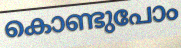
കൊണ്ടുപോം